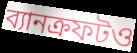
ব্যানক্রফটও